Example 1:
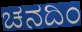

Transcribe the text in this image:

ಚನದಿಂ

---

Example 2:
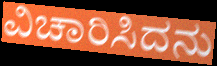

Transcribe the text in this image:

ವಿಚಾರಿಸಿದನು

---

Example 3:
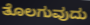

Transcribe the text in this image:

ತೊಲಗುವುದು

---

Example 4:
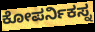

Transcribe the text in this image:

ಕೋಪರ್ನಿಕಸ್ನ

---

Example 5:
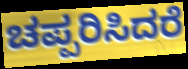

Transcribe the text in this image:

ಚಪ್ಪರಿಸಿದರೆ